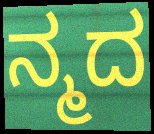
ನ್ಮದ